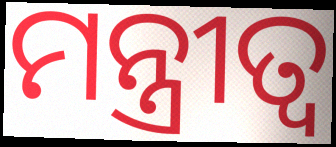
ମନ୍ତ୍ରୀତ୍ୱ